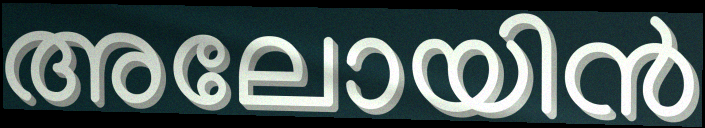
അലോയിൻ